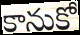
కానుకో